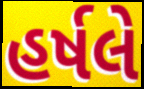
હર્ષલે